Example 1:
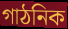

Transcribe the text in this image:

গাঠনিক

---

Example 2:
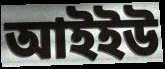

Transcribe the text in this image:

আইইউ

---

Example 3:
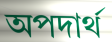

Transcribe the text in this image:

অপদার্থ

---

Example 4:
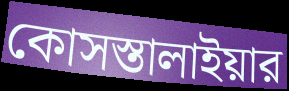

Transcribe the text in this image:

কোসস্তালাইয়ার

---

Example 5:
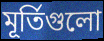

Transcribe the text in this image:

মূর্তিগুলো